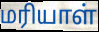
மரியாள்